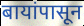
बायांपासून